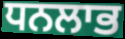
ਧਨਲਾਭ